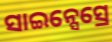
ସାଇନ୍ସେସ୍ରେ